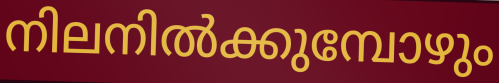
നിലനിൽക്കുമ്പോഴും